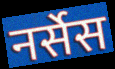
नर्सेस